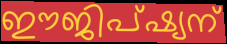
ഈജിപ്ഷ്യന്